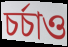
চর্চাও